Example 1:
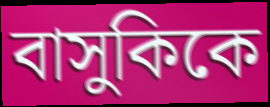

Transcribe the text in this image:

বাসুকিকে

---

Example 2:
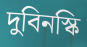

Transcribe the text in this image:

দুবিনস্কি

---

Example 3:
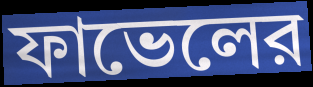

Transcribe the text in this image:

ফাভেলের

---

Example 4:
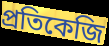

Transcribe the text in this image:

প্রতিকেজি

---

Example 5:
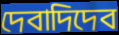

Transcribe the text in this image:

দেবাদিদেব